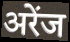
अरेंज